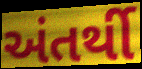
અંતર્થી